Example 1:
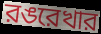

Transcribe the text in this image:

রঙরেখার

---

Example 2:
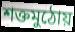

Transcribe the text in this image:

শক্তমুঠোয়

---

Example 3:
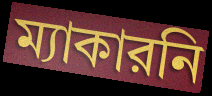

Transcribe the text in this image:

ম্যাকারনি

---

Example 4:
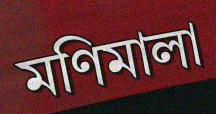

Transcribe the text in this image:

মণিমালা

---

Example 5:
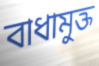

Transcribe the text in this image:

বাধামুক্ত